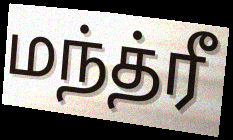
மந்த்ரீ